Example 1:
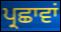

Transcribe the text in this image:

ਪ੍ਰਛਾਵਾਂ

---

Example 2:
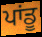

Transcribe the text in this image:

ਪਾਂਡੂ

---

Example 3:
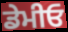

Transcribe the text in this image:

ਡੇਮੀਓ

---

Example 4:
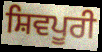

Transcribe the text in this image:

ਸ਼ਿਵਪੂਰੀ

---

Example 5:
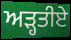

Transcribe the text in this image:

ਅੜ੍ਹਤੀਏ